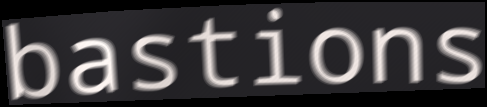
bastions